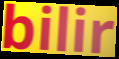
bilir